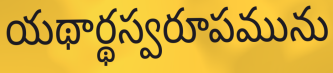
యథార్థస్వరూపమును